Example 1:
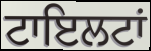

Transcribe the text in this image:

ਟਾਇਲਟਾਂ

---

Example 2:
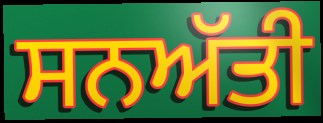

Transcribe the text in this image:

ਸਨਅੱਤੀ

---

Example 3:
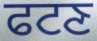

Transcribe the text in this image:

ਫਟਣ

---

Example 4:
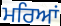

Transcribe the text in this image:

ਮਰਿਆਂ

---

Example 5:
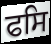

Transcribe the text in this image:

ਫਸਿ